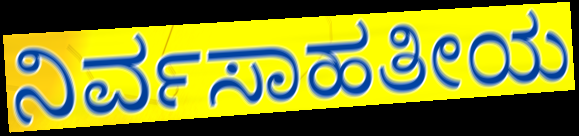
ನಿರ್ವಸಾಹತೀಯ